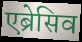
एब्रेसिव